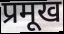
प्रमूख